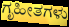
ಗೃಹೀತಗಳು